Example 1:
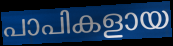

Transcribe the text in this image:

പാപികളായ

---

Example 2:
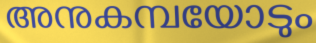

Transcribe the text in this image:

അനുകമ്പയോടും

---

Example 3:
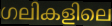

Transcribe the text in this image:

ഗലികളിലെ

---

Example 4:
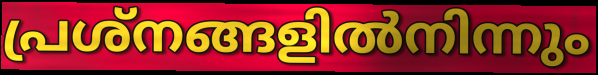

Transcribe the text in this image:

പ്രശ്നങ്ങളിൽനിന്നും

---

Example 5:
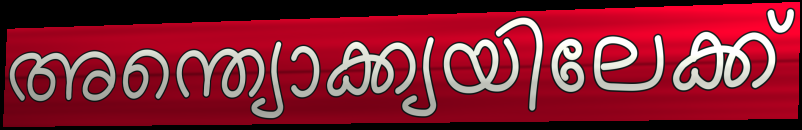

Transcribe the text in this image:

അന്ത്യൊക്ക്യയിലേക്ക്